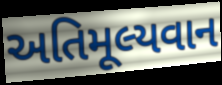
અતિમૂલ્યવાન